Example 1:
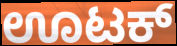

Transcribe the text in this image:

ಊಟಕ್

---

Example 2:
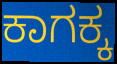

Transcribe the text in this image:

ಕಾಗಕ್ಕ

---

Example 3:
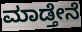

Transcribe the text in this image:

ಮಾಡ್ತೇನೆ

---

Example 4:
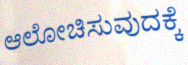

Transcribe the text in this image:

ಆಲೋಚಿಸುವುದಕ್ಕೆ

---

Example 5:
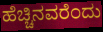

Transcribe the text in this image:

ಹೆಚ್ಚಿನವರೆಂದು